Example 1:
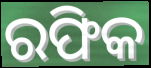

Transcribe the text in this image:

ରଫିକ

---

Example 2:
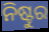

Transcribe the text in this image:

ନିଷ୍ଟୁର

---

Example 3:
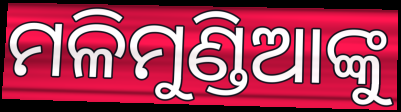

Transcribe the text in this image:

ମଳିମୁଣ୍ଡିଆଙ୍କୁ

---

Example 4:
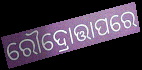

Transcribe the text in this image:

ରୌଦ୍ରୋତ୍ତାପରେ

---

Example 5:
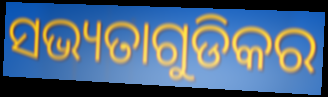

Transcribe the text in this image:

ସଭ୍ୟତାଗୁଡିକର